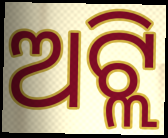
ଅଟ୍ଲି